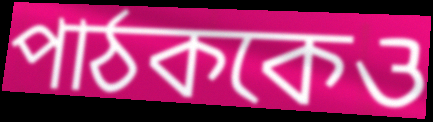
পাঠককেও